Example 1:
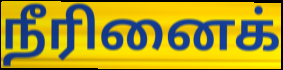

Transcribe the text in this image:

நீரினைக்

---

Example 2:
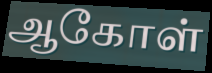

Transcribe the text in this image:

ஆகோள்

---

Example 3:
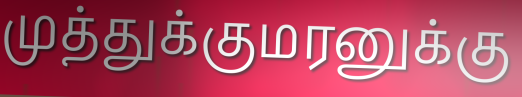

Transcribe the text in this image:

முத்துக்குமரனுக்கு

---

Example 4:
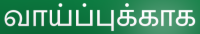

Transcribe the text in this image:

வாய்ப்புக்காக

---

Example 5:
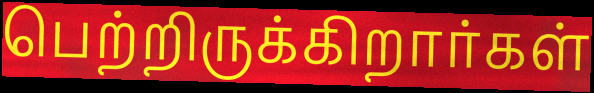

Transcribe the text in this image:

பெற்றிருக்கிறார்கள்